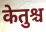
केतुश्च